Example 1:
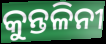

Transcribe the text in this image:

କୁନ୍ତଳିନୀ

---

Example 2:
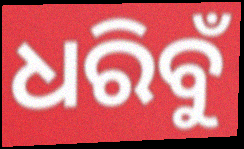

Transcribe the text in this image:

ଧରିବୁଁ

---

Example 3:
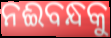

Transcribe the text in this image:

ନଈବନ୍ଧକୁ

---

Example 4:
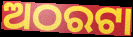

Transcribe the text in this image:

ଅଠରଟା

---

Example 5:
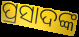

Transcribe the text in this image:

ପ୍ରସାଦଙ୍କ